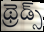
థ్రెడ్స్